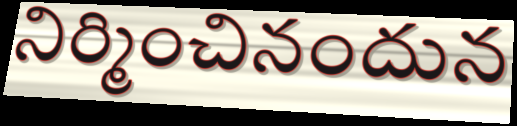
నిర్మించినందున